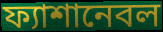
ফ্যাশানেবল